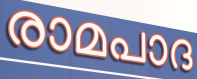
രാമപാദ